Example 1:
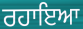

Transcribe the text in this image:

ਰਹਾਇਆ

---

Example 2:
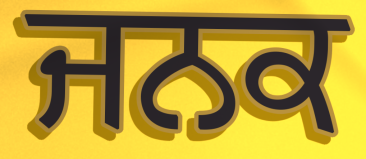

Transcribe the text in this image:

ਜਨਕ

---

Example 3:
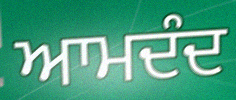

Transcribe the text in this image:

ਆਮਦੰਦ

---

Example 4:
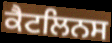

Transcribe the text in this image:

ਕੈਟਲਿਨਸ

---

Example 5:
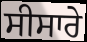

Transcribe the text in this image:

ਸੀਸਾਰੇ